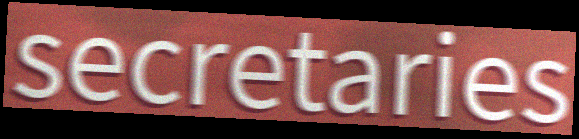
secretaries